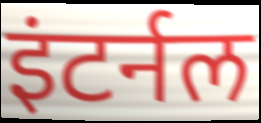
इंटर्नल